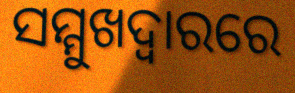
ସମ୍ମୁଖଦ୍ୱାରରେ